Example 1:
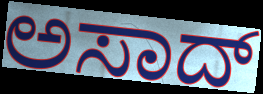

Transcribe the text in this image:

ಅಸಾದ್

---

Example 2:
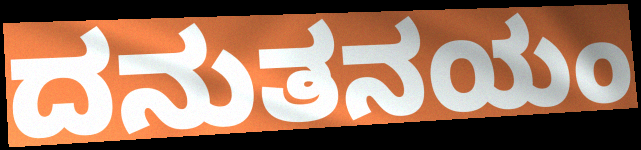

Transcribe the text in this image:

ದನುತನಯಂ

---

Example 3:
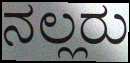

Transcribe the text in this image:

ನಲ್ಲರು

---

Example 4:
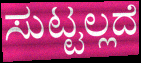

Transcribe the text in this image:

ಸುಟ್ಟಲ್ಲದೆ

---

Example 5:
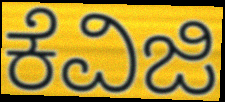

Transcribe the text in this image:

ಕೆವಿಜಿ